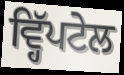
ਵ੍ਹਿੱਪਟੇਲ